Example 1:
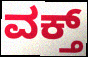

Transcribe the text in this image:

ವಕ್ತ್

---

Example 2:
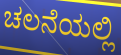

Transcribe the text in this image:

ಚಲನೆಯಲ್ಲಿ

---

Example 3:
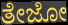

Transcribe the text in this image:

ತೇಜೋ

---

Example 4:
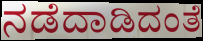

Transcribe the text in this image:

ನಡೆದಾಡಿದಂತೆ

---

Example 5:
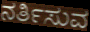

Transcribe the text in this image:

ನರ್ತಿಸುವ